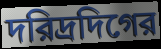
দরিদ্রদিগের